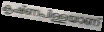
കൃഷ്‌ണപിള്ളയാണ്